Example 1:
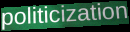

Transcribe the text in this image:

politicization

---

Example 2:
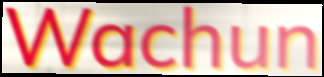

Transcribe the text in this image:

Wachun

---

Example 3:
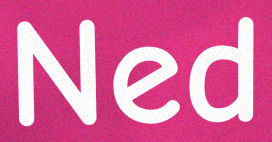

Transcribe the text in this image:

Ned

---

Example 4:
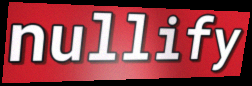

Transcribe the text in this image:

nullify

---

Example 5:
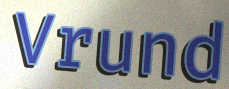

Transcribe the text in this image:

Vrund